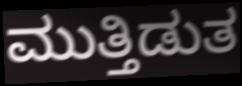
ಮುತ್ತಿಡುತ